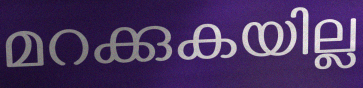
മറക്കുകയില്ല